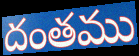
దంతము